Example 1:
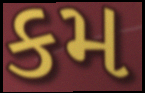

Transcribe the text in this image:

કમ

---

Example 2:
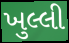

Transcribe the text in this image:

ખુલ્લી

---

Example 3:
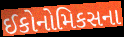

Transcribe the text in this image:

ઈકોનોમિકસના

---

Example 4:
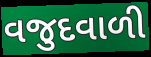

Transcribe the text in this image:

વજુદવાળી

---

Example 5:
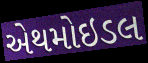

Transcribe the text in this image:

એથમોઇડલ